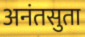
अनंतसुता